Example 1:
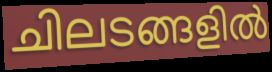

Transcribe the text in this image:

ചിലടങ്ങളിൽ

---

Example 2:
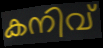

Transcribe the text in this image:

കനിവ്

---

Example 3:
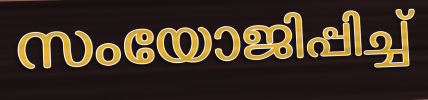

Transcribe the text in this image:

സംയോജിപ്പിച്ച്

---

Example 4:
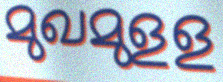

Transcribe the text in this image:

മുഖമുളള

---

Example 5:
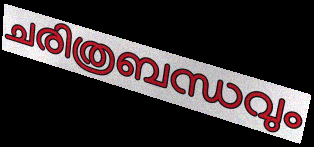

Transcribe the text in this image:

ചരിത്രബന്ധവും